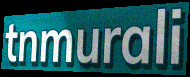
tnmurali